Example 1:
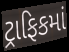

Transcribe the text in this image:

ટ્રાફિકમાં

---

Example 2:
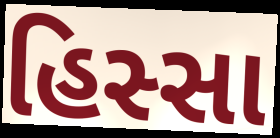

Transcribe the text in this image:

હિસ્સા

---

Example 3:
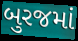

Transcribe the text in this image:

બુરજમાં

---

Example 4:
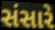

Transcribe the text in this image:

સંસારે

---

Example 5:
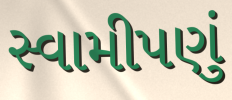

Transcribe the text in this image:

સ્વામીપણું